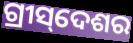
ଗ୍ରୀସ୍‌ଦେଶର